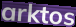
arktos